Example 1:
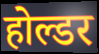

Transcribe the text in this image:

होल्डर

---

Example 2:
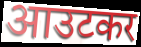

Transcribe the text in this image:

आउटकर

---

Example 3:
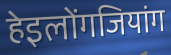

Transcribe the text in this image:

हेइलोंगजियांग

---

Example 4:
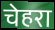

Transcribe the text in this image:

चेहरा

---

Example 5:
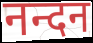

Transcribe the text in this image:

नन्दन